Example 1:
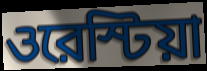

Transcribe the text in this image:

ওরেস্টিয়া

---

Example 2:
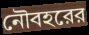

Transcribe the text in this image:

নৌবহরের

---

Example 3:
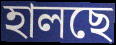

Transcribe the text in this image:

হালছে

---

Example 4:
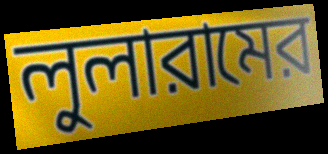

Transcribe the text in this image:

লুলারামের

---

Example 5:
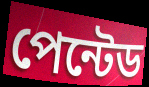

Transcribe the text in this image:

পেন্টেড